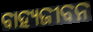
ବାହ୍ୟଜୀବନ